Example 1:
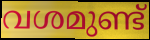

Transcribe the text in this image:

വശമുണ്ട്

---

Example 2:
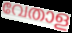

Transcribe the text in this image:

വേതാള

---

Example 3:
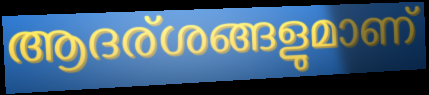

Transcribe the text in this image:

ആദര്ശങ്ങളുമാണ്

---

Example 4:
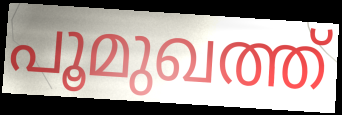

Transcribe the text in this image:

പൂമുഖത്ത്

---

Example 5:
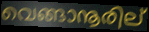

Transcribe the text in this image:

വെങ്ങാനൂരില്